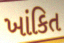
ખાંકિત